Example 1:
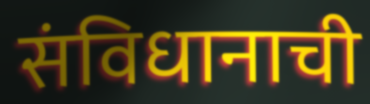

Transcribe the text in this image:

संविधानाची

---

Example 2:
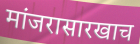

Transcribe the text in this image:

मांजरासारखाच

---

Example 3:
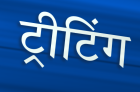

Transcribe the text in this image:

ट्रीटिंग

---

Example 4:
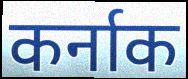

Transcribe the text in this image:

कर्नाक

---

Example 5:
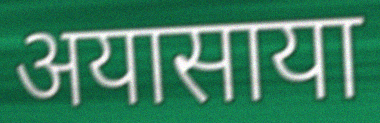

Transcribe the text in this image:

अयासाया